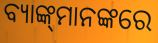
ବ୍ୟାଙ୍କ୍‌ମାନଙ୍କରେ